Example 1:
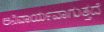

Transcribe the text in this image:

ಅನಿವಾರ್ಯವಾಗುತ್ತದೆ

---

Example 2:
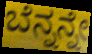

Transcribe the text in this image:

ಬೆನ್ನನ್ನೇ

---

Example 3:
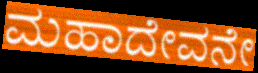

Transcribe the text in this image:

ಮಹಾದೇವನೇ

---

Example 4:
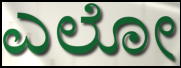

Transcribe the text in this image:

ಎಲೋ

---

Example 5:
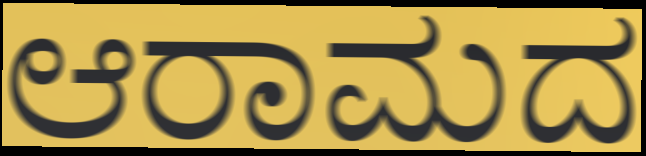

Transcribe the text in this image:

ಆರಾಮದ